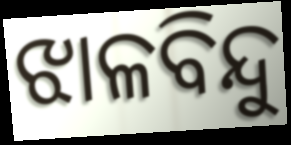
ଝାଳବିନ୍ଦୁ